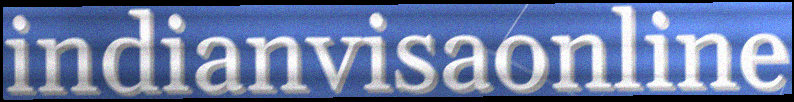
indianvisaonline